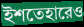
ইশতেহারেও